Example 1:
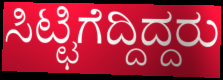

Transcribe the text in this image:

ಸಿಟ್ಟಿಗೆದ್ದಿದ್ದರು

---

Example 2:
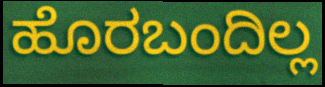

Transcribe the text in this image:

ಹೊರಬಂದಿಲ್ಲ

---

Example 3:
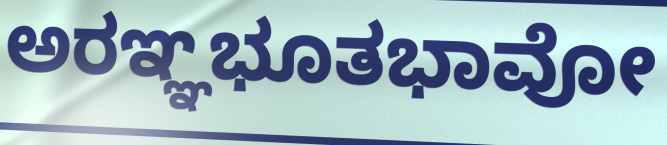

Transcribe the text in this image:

ಅರಞ್ಞಭೂತಭಾವೋ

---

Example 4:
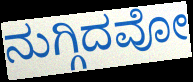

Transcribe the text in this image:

ನುಗ್ಗಿದವೋ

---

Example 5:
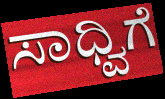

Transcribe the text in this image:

ಸಾಧ್ವಿಗೆ